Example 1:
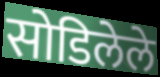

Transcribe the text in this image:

सोडिलेले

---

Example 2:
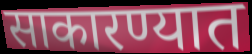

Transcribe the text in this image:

साकारण्यात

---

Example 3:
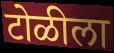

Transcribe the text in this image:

टोळीला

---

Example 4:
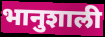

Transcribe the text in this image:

भानुशाली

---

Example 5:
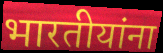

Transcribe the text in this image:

भारतीयांना